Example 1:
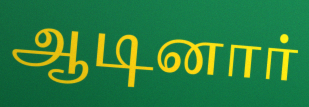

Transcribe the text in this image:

ஆடினார்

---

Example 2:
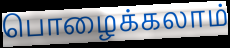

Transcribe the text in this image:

பொழைக்கலாம்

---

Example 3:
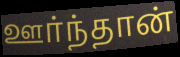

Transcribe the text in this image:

ஊர்ந்தான்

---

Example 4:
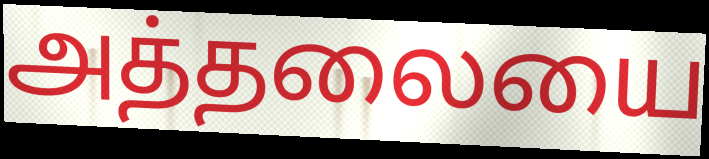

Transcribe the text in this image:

அத்தலையை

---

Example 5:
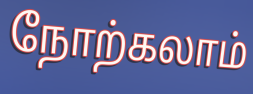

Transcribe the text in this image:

நோற்கலாம்